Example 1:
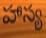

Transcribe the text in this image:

హాస్య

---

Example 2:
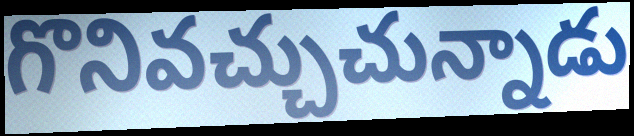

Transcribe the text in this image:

గొనివచ్చుచున్నాడు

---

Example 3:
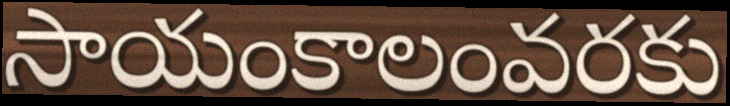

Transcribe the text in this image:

సాయంకాలంవరకు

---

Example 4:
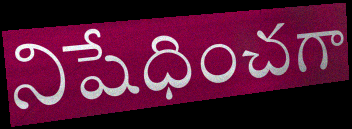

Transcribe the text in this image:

నిషేధించగా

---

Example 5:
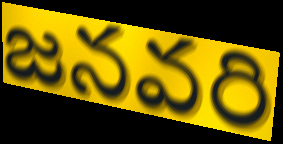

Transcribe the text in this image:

జనవరి